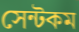
সেন্টকম